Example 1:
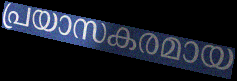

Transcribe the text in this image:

പ്രയാസകരമായ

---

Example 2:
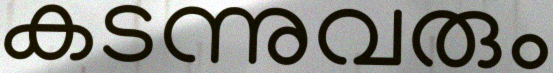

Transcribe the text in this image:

കടന്നുവരും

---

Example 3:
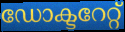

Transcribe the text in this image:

ഡോക്ടറേറ്റ്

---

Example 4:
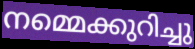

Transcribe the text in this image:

നമ്മെക്കുറിച്ചു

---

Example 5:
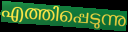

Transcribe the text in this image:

എത്തിപ്പെടുന്നു